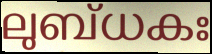
ലുബ്ധകഃ